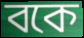
বকে